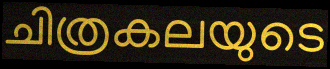
ചിത്രകലയുടെ